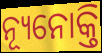
ନ୍ୟୂନୋକ୍ତି